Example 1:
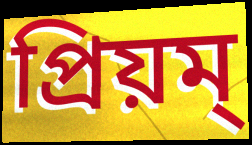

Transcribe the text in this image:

প্রিয়ম্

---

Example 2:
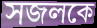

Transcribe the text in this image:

সজলকে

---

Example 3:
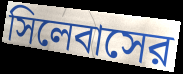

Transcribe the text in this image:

সিলেবাসের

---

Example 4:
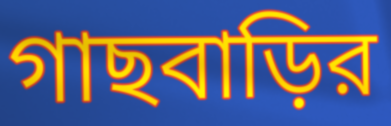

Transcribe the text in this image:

গাছবাড়ির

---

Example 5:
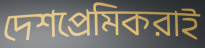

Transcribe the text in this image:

দেশপ্রেমিকরাই